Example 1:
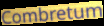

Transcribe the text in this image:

Combretum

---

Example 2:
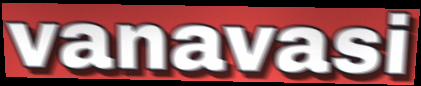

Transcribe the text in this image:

vanavasi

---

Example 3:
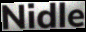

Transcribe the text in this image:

Nidle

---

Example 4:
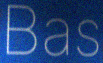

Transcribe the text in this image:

Bas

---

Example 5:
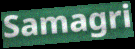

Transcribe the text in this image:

Samagri